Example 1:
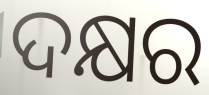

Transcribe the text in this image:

ଦକ୍ଷର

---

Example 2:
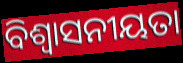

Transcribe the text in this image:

ବିଶ୍ୱାସନୀୟତା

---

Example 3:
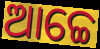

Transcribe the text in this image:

ଆଚ୍ଚେ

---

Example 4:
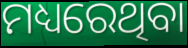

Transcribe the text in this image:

ମଧ୍ୟରେଥିବା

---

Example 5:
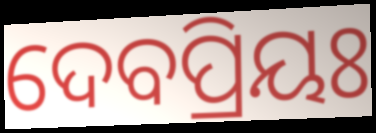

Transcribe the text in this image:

ଦେବପ୍ରିୟଃ